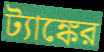
ট্যাঙ্কের